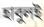
হাবুলই